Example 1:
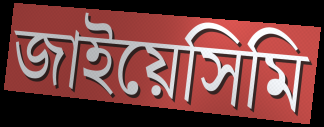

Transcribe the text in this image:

জাইয়েসিমি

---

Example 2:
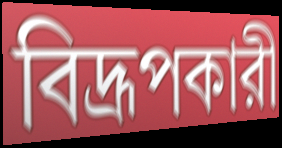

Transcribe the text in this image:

বিদ্রূপকারী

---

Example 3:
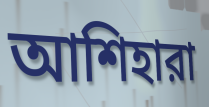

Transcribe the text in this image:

আশিহারা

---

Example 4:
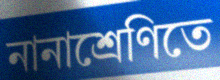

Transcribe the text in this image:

নানাশ্রেণিতে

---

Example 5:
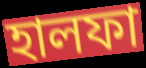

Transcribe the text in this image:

হালফা